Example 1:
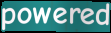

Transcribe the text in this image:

powered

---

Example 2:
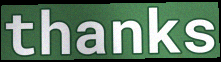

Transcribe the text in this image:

thanks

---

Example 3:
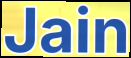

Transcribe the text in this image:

Jain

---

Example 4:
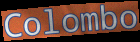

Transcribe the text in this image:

Colombo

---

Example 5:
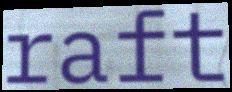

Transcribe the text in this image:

raft